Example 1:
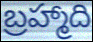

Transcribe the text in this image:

బ్రహ్మాది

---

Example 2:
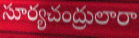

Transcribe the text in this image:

సూర్యచంద్రులారా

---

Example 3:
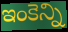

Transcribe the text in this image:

ఇంకెన్ని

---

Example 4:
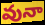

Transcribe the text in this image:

వునా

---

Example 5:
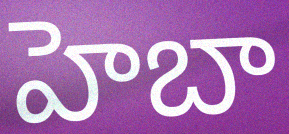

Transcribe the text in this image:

హెబా